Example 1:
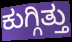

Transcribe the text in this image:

ಕುಗ್ಗಿತ್ತು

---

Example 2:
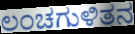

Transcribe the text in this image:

ಲಂಚಗುಳಿತನ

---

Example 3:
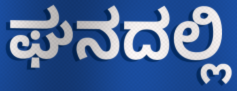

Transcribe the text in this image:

ಘನದಲ್ಲಿ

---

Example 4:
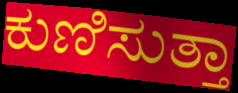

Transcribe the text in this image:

ಕುಣಿಸುತ್ತಾ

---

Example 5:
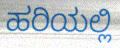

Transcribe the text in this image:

ಹರಿಯಲ್ಲಿ